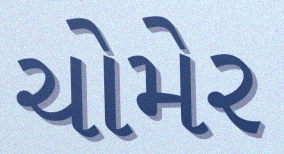
ચોમેર